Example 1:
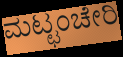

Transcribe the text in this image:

ಮಟ್ಟಂಚೇರಿ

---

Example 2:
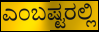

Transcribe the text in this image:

ಎಂಬಷ್ಟರಲ್ಲಿ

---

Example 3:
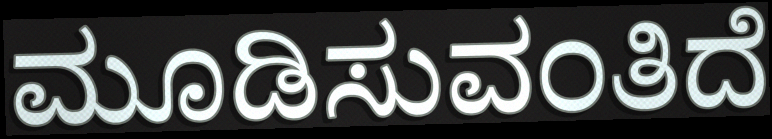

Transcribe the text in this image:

ಮೂಡಿಸುವಂತಿದೆ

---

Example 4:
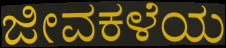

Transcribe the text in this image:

ಜೀವಕಳೆಯ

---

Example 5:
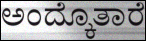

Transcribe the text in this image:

ಅಂದ್ಕೊತಾರೆ